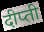
दीप्ती